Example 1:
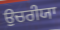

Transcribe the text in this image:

ਉਚਰੀਯਾ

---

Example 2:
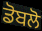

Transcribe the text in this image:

ਡੋਬਲੋ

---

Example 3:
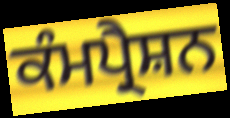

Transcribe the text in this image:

ਕੰਮਪ੍ਰੈਸ਼ਨ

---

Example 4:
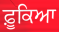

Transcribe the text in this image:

ਫ਼ੂਕਿਆ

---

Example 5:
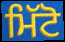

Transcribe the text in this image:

ਮਿੱਟੋ